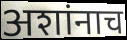
अशांनाच